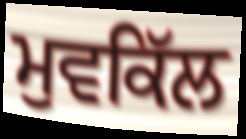
ਮੁਵਕਿੱਲ